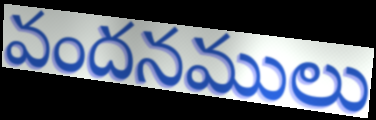
వందనములు